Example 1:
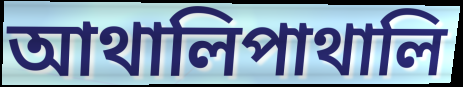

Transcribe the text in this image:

আথালিপাথালি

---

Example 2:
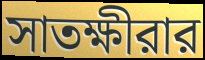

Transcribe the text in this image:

সাতক্ষীরার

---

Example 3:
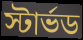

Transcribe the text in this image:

স্টার্ভড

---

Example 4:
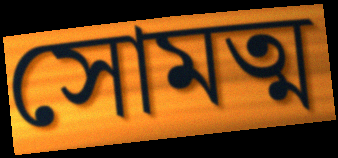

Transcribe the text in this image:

সোমত্ম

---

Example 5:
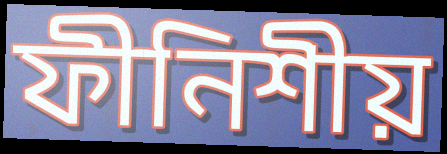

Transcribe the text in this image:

ফীনিশীয়